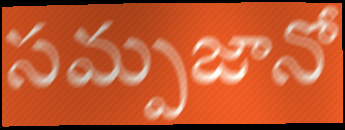
సమ్పజానో